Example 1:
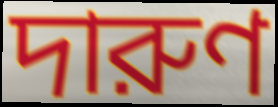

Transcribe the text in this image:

দারুণ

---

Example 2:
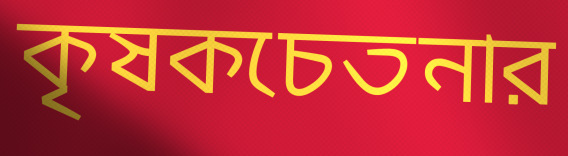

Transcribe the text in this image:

কৃষকচেতনার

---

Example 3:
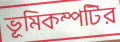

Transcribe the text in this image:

ভূমিকম্পটির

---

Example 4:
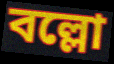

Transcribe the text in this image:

বল্লো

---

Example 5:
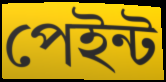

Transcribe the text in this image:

পেইন্ট